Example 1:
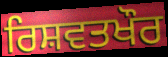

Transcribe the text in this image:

ਰਿਸ਼ਵਤਖੌਰ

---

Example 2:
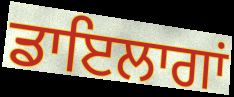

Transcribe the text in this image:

ਡਾਇਲਾਗਾਂ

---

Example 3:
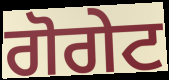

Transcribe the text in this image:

ਗੋਗੇਟ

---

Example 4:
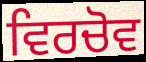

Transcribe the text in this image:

ਵਿਰਚੋਵ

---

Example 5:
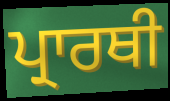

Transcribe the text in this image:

ਪ੍ਰਾਰਥੀ